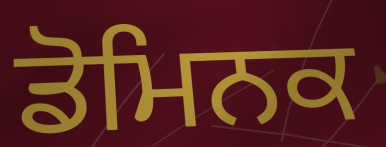
ਡੋਮਿਨਕ